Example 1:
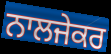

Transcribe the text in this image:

ਨਾਲਜੇਕਰ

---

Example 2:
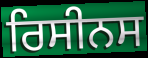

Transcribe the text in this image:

ਰਿਸੀਨਸ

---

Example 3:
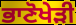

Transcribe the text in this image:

ਭਾਣੋਖੇੜੀ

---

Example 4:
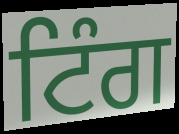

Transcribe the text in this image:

ਟਿੰਗ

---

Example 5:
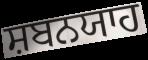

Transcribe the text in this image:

ਸ਼ਬਨਯਾਹ